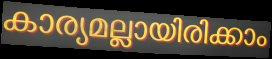
കാര്യമല്ലായിരിക്കാം